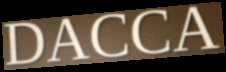
DACCA